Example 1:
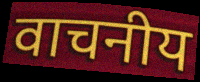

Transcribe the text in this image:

वाचनीय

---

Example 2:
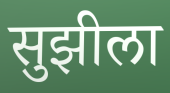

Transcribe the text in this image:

सुझीला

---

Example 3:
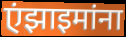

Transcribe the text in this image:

एंझाइमांना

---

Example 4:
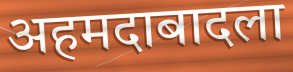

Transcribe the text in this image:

अहमदाबादला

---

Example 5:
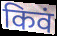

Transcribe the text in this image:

किवं